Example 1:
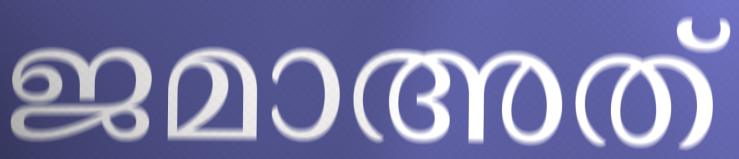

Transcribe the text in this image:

ജമാഅത്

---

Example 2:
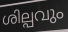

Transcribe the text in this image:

ശില്പവും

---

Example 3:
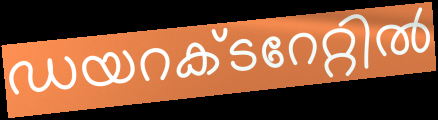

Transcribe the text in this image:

ഡയറക്ടറേറ്റിൽ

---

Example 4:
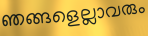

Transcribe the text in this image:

ഞങ്ങളെല്ലാവരും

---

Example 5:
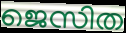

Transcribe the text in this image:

ജെസിത